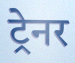
ट्रेनर